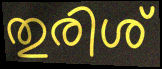
തുരിശ്